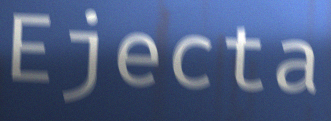
Ejecta